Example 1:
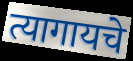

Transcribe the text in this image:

त्यागायचे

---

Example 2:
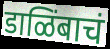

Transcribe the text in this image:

डाळिंबाचं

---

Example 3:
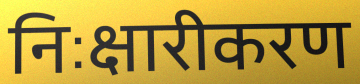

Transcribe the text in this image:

निःक्षारीकरण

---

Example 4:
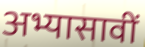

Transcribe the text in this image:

अभ्यासावीं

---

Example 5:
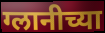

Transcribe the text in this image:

ग्लानीच्या